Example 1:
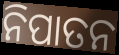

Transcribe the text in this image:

ନିପାତନ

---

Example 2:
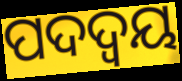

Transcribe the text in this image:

ପଦଦ୍ଵୟ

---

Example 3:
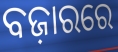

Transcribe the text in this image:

ବଜ଼ାରରେ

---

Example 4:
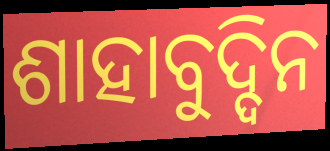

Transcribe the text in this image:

ଶାହାବୁଦ୍ଦିନ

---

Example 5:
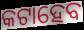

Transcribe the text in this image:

କଟାହେବ